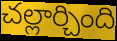
చల్లార్చింది